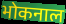
भोकनाल